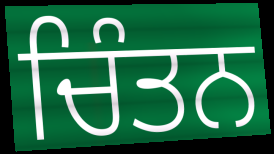
ਚਿੰਤਨ